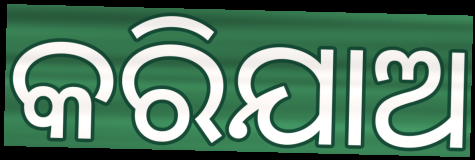
କରିଯାଅ